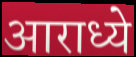
आराध्ये